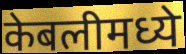
केबलीमध्ये